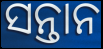
ସନ୍ତାନ